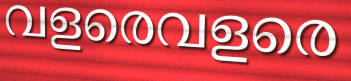
വളരെവളരെ